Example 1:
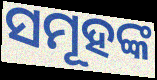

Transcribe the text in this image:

ସମୂହଙ୍କ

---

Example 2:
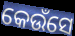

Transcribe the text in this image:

କେଉଁସେ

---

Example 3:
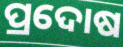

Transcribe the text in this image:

ପ୍ରଦୋଷ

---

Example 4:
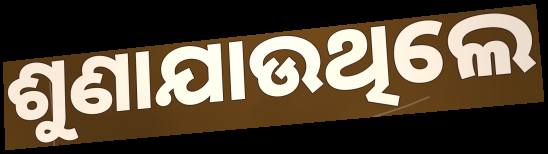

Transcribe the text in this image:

ଶୁଣାଯାଉଥିଲେ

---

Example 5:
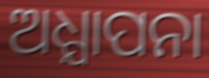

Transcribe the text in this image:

ଅଧ୍ଯାପନା